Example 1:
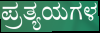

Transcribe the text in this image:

ಪ್ರತ್ಯಯಗಳ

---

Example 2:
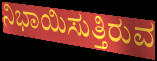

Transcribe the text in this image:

ನಿಭಾಯಿಸುತ್ತಿರುವ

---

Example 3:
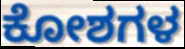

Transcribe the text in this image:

ಕೋಶಗಳ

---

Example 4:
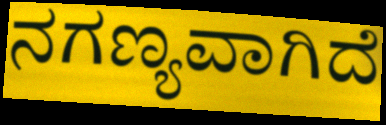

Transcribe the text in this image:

ನಗಣ್ಯವಾಗಿದೆ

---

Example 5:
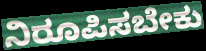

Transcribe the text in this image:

ನಿರೂಪಿಸಬೇಕು